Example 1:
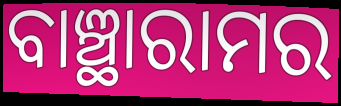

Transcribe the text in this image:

ବାଞ୍ଛାରାମର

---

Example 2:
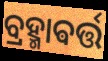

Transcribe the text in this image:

ବ୍ରହ୍ମାଵର୍ତ୍ତ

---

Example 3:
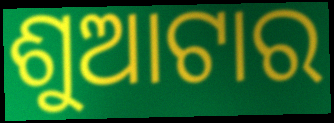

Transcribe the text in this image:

ଶୁଆଟାର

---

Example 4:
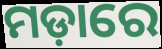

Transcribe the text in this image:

ମଡ଼ାରେ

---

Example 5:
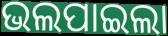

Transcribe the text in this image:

ଭଲପାଇଲା